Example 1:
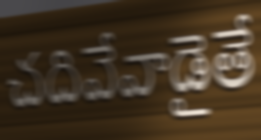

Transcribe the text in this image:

చదివేవాడైతే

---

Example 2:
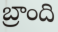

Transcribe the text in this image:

బ్రాంది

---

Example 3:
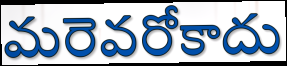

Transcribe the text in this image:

మరెవరోకాదు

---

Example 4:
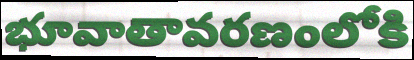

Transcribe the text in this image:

భూవాతావరణంలోకి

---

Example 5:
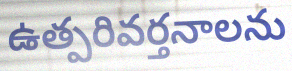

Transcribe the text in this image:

ఉత్పరివర్తనాలను